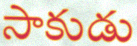
సాకుడు